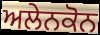
ਅਲੇਨਕੋਨ